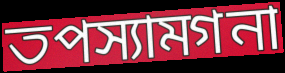
তপস্যামগনা